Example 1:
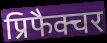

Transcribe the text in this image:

प्रिफैक्चर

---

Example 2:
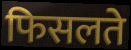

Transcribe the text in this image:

फिसलते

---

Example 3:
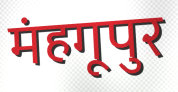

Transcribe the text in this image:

मंहगूपुर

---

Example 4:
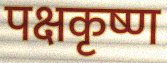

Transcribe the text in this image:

पक्षकृष्ण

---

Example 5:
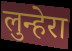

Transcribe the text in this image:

लुन्हेरा